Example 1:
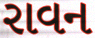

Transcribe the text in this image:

રાવન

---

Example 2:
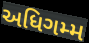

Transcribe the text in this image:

અધિગમ્મ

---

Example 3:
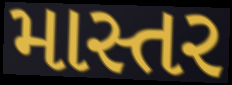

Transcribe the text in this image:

માસ્તર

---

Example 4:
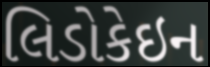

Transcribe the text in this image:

લિડોકેઇન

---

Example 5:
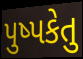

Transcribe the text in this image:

પુષ્પકેતુ